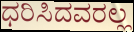
ಧರಿಸಿದವರಲ್ಲ